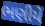
ભણીયે